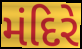
મંદિરે